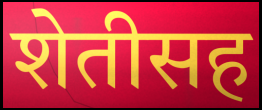
शेतीसह